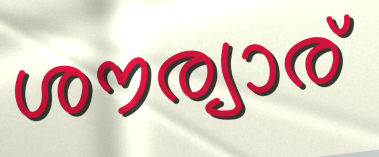
ശൗര്യാര്